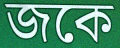
জকে